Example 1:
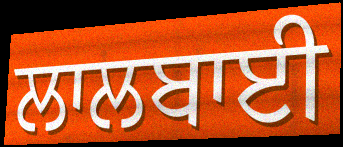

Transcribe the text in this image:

ਲਾਲਬਾਈ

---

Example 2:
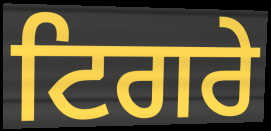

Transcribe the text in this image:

ਟਿਗਰੇ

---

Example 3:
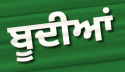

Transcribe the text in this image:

ਬੂਦੀਆਂ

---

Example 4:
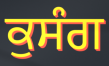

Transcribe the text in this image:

ਕੁਸੰਗ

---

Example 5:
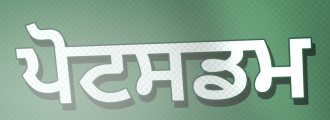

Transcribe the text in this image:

ਪੋਟਸਡਮ